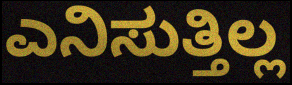
ಎನಿಸುತ್ತಿಲ್ಲ